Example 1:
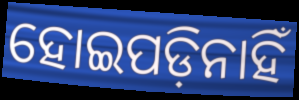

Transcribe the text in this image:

ହୋଇପଡ଼ିନାହିଁ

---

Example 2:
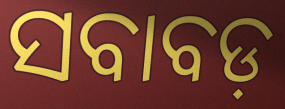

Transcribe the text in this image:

ସବାବଡ଼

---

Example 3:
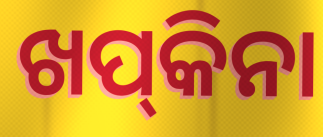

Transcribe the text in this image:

ଖପ୍‌କିନା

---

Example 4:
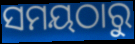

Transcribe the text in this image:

ସମୟଠାରୁ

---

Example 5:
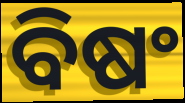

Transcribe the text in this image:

ବିଷଂ